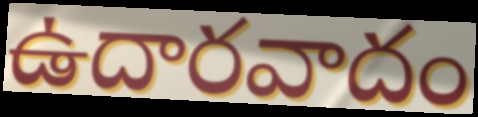
ఉదారవాదం